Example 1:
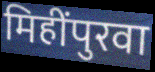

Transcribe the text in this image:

मिहींपुरवा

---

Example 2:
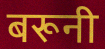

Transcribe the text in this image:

बरूनी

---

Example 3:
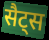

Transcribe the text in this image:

सैट्स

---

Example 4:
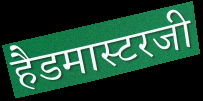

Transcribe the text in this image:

हैडमास्टरजी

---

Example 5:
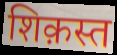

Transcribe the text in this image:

शिक़स्त